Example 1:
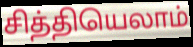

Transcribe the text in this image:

சித்தியெலாம்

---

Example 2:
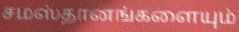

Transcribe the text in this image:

சமஸ்தானங்களையும்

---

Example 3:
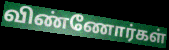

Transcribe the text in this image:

விண்ணோர்கள்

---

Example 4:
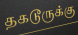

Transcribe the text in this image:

தகடூருக்கு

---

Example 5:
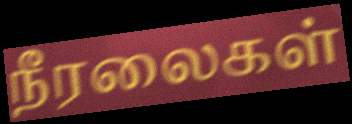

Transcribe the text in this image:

நீரலைகள்